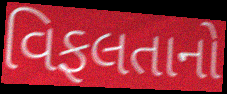
વિફલતાનો